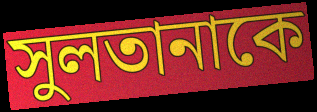
সুলতানাকে